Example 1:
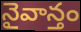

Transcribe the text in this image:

నైవాన్తం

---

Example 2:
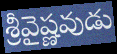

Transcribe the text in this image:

శ్రీవైష్ణవుడు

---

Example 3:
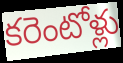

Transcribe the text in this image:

కరెంటోళ్లు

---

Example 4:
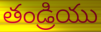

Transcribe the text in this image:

తండ్రియు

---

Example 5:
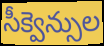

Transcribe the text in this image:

సీక్వెన్సుల